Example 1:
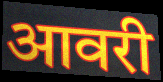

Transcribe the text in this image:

आवरी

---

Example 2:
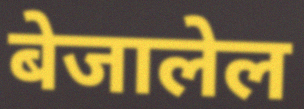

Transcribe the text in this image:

बेजालेल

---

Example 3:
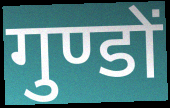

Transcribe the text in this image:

गुण्डों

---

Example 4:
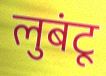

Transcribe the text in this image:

लुबंटू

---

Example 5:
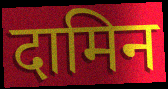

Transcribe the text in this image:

दामिन